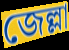
জেল্লা